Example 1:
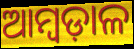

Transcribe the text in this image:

ଆମ୍ବଡ଼ାଳ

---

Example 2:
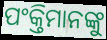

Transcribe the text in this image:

ପଂକ୍ତିମାନଙ୍କୁ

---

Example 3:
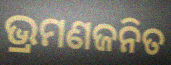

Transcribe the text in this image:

ଭ୍ରମଣଜନିତ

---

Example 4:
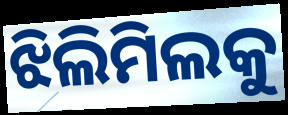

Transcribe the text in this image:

ଝିଲିମିଲକୁ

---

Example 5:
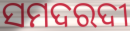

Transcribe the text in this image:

ସମଦରଦୀ